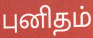
புனிதம்